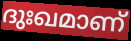
ദുഃഖമാണ്